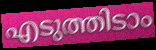
എടുത്തിടാം